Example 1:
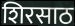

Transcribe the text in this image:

शिरसाठ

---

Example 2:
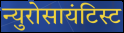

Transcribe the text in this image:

न्युरोसायंटिस्ट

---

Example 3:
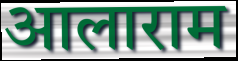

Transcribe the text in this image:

आलाराम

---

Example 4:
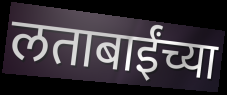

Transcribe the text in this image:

लताबाईंच्या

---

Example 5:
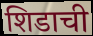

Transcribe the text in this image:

शिडाची